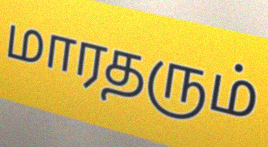
மாரதரும்